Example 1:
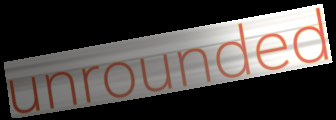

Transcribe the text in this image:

unrounded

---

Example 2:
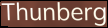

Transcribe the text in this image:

Thunberg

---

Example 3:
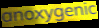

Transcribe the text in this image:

anoxygenic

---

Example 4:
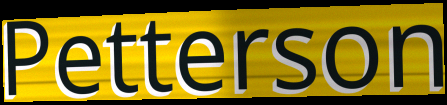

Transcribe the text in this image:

Petterson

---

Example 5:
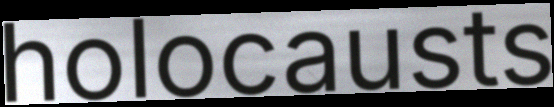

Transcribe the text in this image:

holocausts